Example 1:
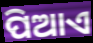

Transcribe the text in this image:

ପିଆଏ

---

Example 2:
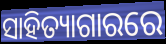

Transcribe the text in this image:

ସାହିତ୍ୟାଗାରରେ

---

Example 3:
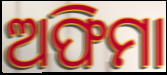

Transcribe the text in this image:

ଅଫିମା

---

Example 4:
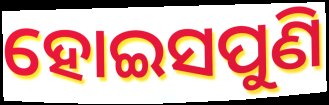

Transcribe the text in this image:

ହୋଇସପୁଣି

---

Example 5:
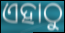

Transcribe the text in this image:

ଏହାଠୁ